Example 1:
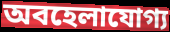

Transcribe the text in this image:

অবহেলাযোগ্য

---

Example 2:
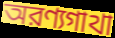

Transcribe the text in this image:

অরণ্যগাথা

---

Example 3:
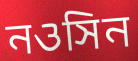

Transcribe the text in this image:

নওসিন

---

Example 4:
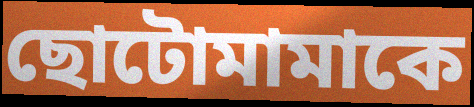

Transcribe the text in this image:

ছোটোমামাকে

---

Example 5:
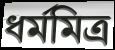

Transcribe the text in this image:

ধর্মমিত্র